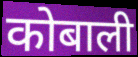
कोबाली